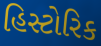
હિસ્ટોરિક